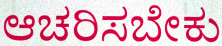
ಆಚರಿಸಬೇಕು